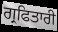
ਗ੍ਰਫਿਤਾਰੀ